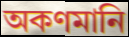
অকণমানি